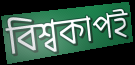
বিশ্বকাপই